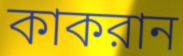
কাকরান